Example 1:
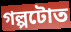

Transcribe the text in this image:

গল্পটোত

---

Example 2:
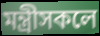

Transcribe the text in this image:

মন্ত্ৰীসকলে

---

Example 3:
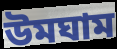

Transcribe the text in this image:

উমঘাম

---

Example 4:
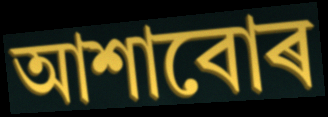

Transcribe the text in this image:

আশাবোৰ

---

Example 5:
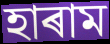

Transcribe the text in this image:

হাৰাম